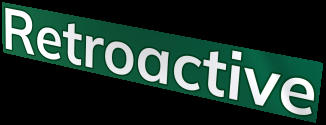
Retroactive